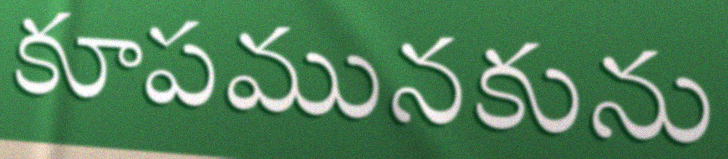
కూపమునకును